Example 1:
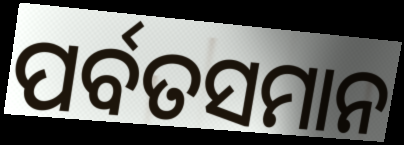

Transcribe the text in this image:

ପର୍ବତସମାନ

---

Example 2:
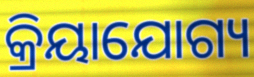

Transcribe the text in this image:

କ୍ରିୟାଯୋଗ୍ୟ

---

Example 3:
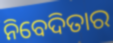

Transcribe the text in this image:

ନିବେଦିତାର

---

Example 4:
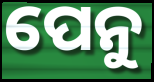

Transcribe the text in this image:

ପେନୁ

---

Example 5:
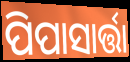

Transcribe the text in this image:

ପିପାସାର୍ତ୍ତା